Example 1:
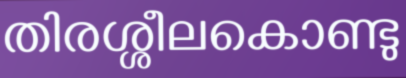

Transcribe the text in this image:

തിരശ്ശീലകൊണ്ടു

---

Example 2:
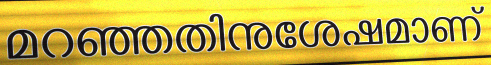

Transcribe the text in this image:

മറഞ്ഞതിനുശേഷമാണ്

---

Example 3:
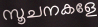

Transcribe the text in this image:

സൂചനകളേ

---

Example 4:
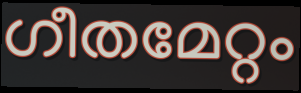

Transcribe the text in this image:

ഗീതമേറ്റം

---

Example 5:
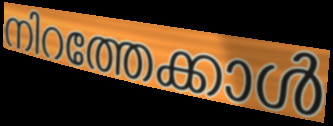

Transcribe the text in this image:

നിറത്തേക്കാൾ